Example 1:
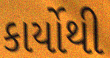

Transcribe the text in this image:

કાર્યોથી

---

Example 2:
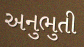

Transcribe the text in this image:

અનુભુતી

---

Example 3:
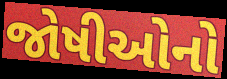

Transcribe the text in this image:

જોષીઓનો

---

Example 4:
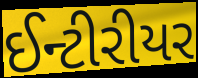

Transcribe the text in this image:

ઈન્ટીરીયર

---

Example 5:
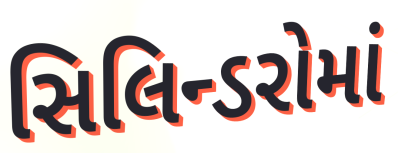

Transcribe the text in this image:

સિલિન્ડરોમાં